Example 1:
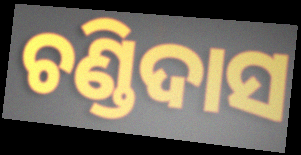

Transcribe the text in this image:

ଚଣ୍ଡିଦାସ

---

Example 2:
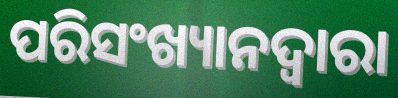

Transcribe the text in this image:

ପରିସଂଖ୍ୟାନଦ୍ଵାରା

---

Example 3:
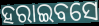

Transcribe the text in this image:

ହରାଇବସେ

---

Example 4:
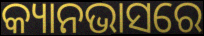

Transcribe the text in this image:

କ୍ୟାନଭାସରେ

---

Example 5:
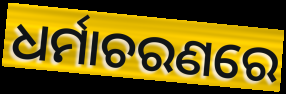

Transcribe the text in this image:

ଧର୍ମାଚରଣରେ